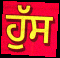
ਹੁੱਸ